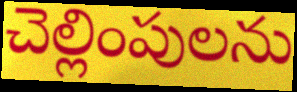
చెల్లింపులను